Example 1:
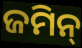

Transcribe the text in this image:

ଜମିନ୍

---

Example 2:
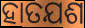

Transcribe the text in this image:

ହାତଯଶ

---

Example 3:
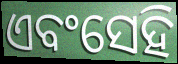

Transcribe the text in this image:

ଏବଂସେହି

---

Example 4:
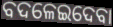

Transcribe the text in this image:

ବଦଳେଇଦେବା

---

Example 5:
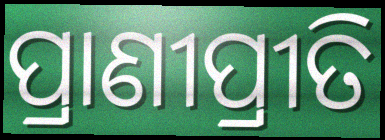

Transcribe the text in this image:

ପ୍ରାଣୀପ୍ରୀତି